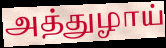
அத்துழாய்